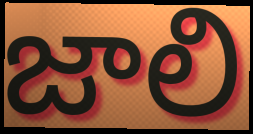
జాలి